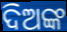
ଦିଅଙ୍କ